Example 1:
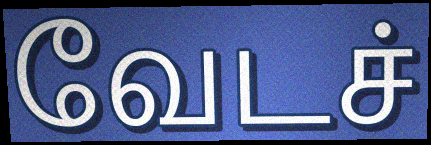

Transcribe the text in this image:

வேடச்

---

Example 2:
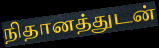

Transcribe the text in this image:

நிதானத்துடன்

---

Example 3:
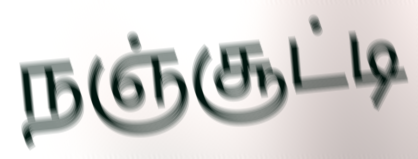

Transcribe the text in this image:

நஞ்சூட்டி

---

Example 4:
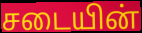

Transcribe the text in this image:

சடையின்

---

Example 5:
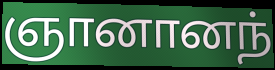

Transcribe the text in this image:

ஞானானந்